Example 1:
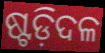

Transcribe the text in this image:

ଷ୍ଟଡ଼ିଦଳ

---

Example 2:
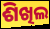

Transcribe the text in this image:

ଶିଖିଲ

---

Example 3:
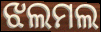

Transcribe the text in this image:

ଝଲମଲ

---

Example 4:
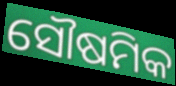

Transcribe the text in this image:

ସୌଷମିକ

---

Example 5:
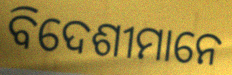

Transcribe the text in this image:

ବିଦେଶୀମାନେ